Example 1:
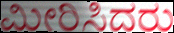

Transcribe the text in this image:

ಮೀರಿಸಿದರು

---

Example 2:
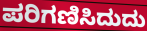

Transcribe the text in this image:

ಪರಿಗಣಿಸಿದುದು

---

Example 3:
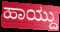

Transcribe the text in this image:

ಹಾಯ್ದು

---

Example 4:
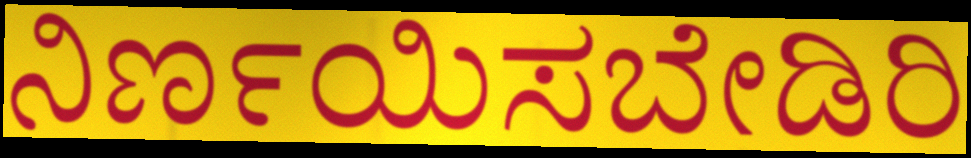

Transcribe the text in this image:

ನಿರ್ಣಯಿಸಬೇಡಿರಿ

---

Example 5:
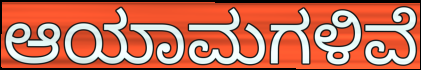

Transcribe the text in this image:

ಆಯಾಮಗಳಿವೆ